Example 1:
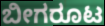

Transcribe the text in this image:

ಬೀಗರೂಟ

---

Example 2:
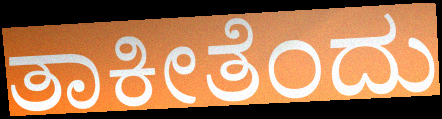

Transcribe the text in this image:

ತಾಕೀತೆಂದು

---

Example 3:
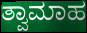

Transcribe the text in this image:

ತ್ವಾಮಾಹ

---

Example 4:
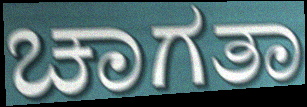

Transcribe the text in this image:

ಚಾಗತಾ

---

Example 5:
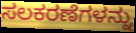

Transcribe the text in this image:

ಸಲಕರಣೆಗಳನ್ನು